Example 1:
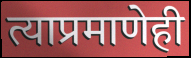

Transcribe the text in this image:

त्याप्रमाणेही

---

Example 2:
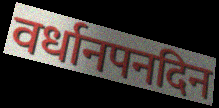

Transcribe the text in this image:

वर्धानपनदिन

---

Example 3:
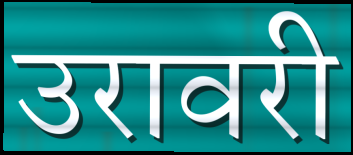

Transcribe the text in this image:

उरावरी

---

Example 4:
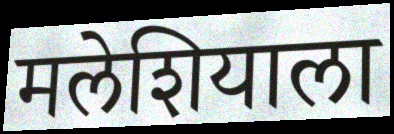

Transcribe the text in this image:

मलेशियाला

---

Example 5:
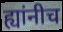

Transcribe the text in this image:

ह्यांनीच